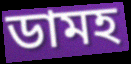
ডামহ